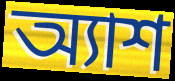
অ্যাশ